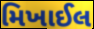
મિખાઈલ